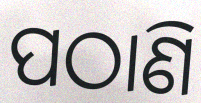
ପଠାଣି